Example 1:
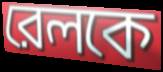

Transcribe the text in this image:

রেলকে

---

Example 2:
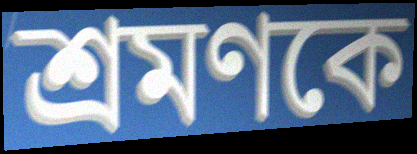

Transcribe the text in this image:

শ্রমণকে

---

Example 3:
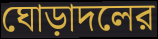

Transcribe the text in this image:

ঘোড়াদলের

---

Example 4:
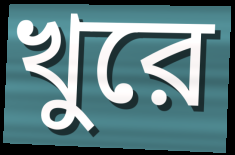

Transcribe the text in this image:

খুরে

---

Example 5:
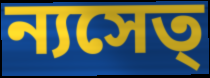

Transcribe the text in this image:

ন্যসেত্